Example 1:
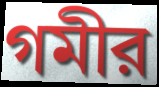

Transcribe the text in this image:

গমীর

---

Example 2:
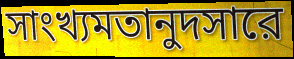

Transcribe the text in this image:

সাংখ্যমতানুদসারে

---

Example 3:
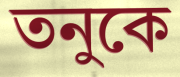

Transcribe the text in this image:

তনুকে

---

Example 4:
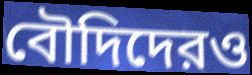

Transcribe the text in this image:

বৌদিদেরও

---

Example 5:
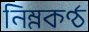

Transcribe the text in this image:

নিম্নকণ্ঠ